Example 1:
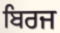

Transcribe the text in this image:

ਬਿਰਜ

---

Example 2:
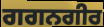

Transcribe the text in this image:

ਗਗਨਗੀਰ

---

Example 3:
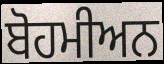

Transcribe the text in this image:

ਬੋਹਮੀਅਨ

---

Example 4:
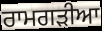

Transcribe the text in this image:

ਰਾਮਗੜੀਆ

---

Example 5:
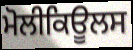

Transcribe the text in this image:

ਮੋਲੀਕਿਊਲਸ